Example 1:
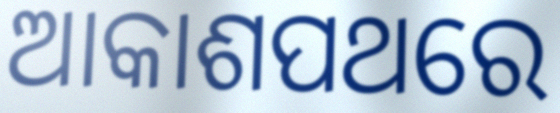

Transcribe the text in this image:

ଆକାଶପଥରେ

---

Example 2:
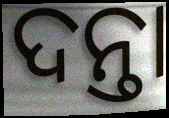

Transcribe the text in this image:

ଦନ୍ତା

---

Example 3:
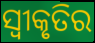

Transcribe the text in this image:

ସ୍ୱୀକୃତିର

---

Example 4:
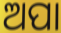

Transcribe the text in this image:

ଅପା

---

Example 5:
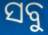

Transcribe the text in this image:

ସବୁ